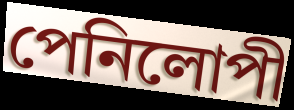
পেনিলোপী